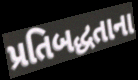
પ્રતિબદ્ધતાના